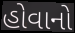
હોવાનો